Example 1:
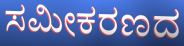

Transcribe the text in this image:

ಸಮೀಕರಣದ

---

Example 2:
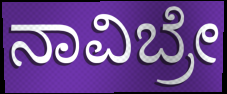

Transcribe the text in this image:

ನಾವಿಬ್ರೇ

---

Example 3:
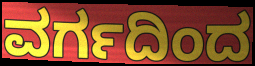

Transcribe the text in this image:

ವರ್ಗದಿಂದ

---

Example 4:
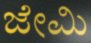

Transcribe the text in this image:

ಜೇಮಿ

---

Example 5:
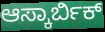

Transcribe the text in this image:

ಆಸ್ಕಾರ್ಬಿಕ್